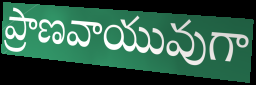
ప్రాణవాయువుగా